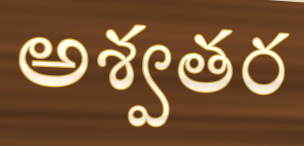
అశ్వతర